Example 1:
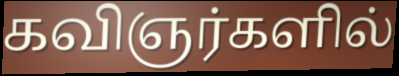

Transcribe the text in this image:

கவிஞர்களில்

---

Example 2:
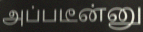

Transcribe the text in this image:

அப்படீன்னு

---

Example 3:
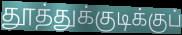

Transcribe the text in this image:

தூத்துக்குடிக்குப்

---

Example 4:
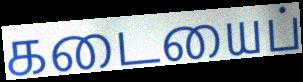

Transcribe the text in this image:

கடையைப்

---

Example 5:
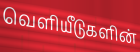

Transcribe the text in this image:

வெளியீடுகளின்